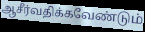
ஆசீர்வதிக்கவேண்டும்